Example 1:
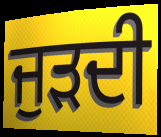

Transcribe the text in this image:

ਜੁੜਦੀ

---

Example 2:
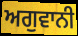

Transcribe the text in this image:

ਅਗੁਵਾਨੀ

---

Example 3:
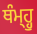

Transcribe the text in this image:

ਥੰਮ੍ਹ੍ਹੁ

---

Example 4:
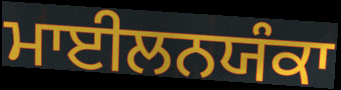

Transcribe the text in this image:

ਮਾਈਲਨਯੰਕਾ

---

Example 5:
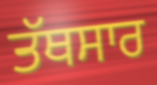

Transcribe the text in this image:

ਤੱਥਸਾਰ